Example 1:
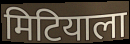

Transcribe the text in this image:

मिटियाला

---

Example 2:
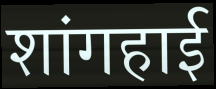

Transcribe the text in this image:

शांगहाई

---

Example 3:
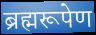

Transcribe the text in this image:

ब्रह्मरूपेण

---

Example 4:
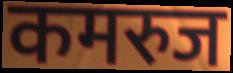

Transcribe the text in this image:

कमरुज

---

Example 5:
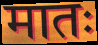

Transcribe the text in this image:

मातः